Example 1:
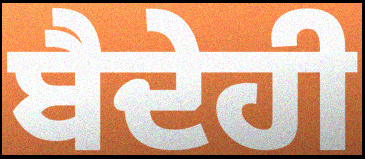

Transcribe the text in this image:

ਬੈਦੇਹੀ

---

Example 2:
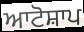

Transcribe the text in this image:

ਆਟੋਸ਼ਾਪ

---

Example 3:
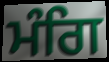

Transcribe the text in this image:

ਮੰਗਿ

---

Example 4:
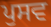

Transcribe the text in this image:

ਪੁਸਵ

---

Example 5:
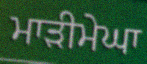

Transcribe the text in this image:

ਮਾੜੀਮੇਘਾ